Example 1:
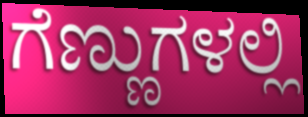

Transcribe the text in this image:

ಗೆಣ್ಣುಗಳಲ್ಲಿ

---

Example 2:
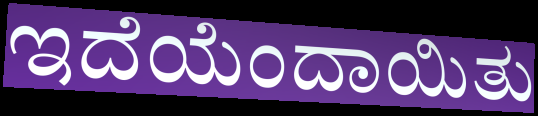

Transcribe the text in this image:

ಇದೆಯೆಂದಾಯಿತು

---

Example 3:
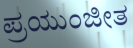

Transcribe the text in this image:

ಪ್ರಯುಂಜೀತ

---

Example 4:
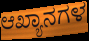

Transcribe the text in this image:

ಆಖ್ಯಾನಗಳ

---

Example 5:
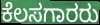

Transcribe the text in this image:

ಕೆಲಸಗಾರರು